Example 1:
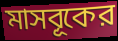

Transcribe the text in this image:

মাসবূকের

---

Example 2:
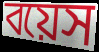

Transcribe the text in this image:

বয়েস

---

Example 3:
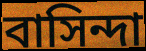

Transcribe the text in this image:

বাসিন্দা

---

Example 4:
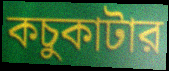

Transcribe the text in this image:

কচুকাটার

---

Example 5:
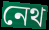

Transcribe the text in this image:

নেথ